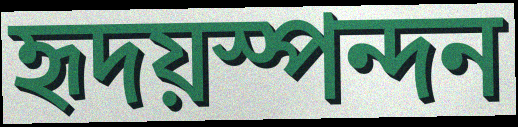
হৃদয়স্পন্দন